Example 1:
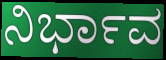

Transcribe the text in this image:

ನಿರ್ಭಾವ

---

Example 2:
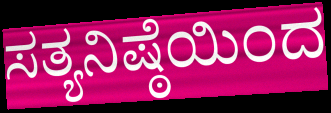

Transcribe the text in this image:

ಸತ್ಯನಿಷ್ಠೆಯಿಂದ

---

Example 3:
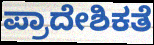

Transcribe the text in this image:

ಪ್ರಾದೇಶಿಕತೆ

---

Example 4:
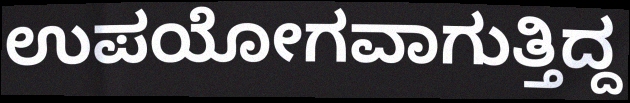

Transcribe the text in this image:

ಉಪಯೋಗವಾಗುತ್ತಿದ್ದ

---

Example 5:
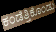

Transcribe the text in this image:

ಕಂಡೆತ್ತಿಕೊಂಡು